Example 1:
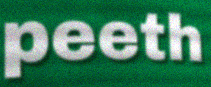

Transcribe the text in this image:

peeth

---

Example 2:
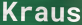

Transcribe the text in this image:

Kraus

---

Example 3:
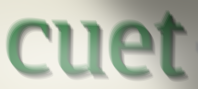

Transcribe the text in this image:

cuet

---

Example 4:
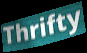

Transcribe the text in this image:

Thrifty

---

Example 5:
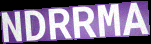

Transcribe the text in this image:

NDRRMA